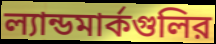
ল্যান্ডমার্কগুলির